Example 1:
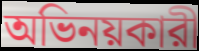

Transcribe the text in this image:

অভিনয়কারী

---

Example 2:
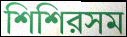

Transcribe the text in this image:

শিশিরসম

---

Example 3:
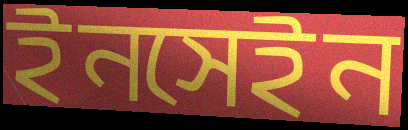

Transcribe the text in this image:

ইনসেইন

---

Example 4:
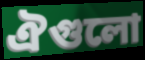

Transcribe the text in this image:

ঐগুলো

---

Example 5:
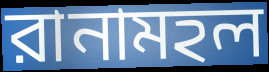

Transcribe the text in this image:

রানামহল